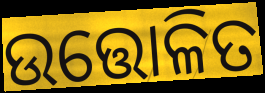
ଉତ୍ତୋଳିତ